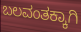
ಬಲವಂತಕ್ಕಾಗಿ